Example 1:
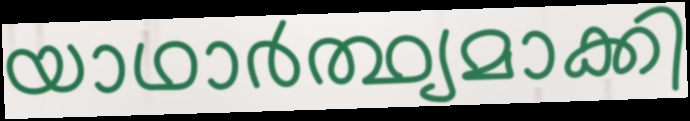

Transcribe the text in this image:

യാഥാർത്ഥ്യമാക്കി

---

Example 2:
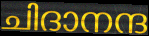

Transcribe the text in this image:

ചിദാനന്ദ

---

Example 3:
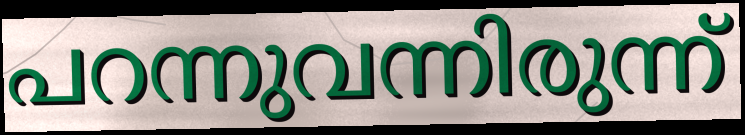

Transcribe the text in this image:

പറന്നുവന്നിരുന്ന്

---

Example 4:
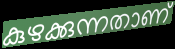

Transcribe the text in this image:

കുഴക്കുന്നതാണ്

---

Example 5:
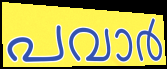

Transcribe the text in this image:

പവാർ